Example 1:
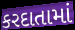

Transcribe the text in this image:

કરદાતામાં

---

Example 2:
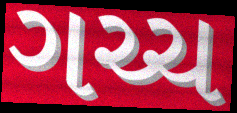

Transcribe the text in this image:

ગચ્ચ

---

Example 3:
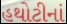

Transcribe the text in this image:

હથોટીનાં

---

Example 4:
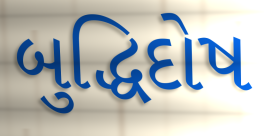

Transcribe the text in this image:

બુદ્ધિદોષ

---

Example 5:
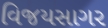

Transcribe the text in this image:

વિજયસાગર